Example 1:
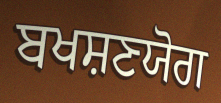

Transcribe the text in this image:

ਬਖਸ਼ਣਯੋਗ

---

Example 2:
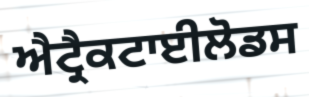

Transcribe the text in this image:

ਐਟ੍ਰੈਕਟਾਈਲੋਡਸ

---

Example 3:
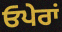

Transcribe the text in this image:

ਓਪੇਰਾਂ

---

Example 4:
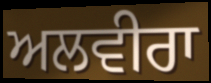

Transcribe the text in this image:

ਅਲਵੀਰਾ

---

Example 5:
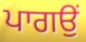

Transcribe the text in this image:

ਪਾਗਉਂ